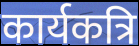
कार्यकत्रि